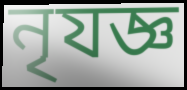
নৃযজ্ঞ